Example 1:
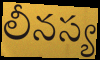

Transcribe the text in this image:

లీనస్య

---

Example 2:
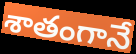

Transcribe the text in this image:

శాతంగానే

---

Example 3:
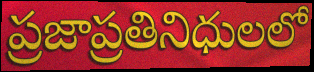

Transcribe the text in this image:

ప్రజాప్రతినిధులలో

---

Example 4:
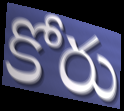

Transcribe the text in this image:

కోరు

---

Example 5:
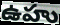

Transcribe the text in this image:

ఉహు